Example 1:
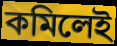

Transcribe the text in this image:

কমিলেই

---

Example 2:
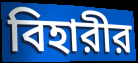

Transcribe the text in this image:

বিহারীর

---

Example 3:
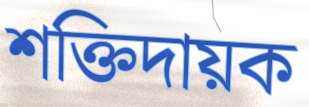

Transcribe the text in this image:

শক্তিদায়ক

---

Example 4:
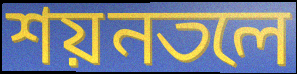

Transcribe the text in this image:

শয়নতলে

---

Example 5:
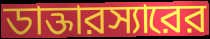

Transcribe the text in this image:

ডাক্তারস্যারের